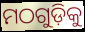
ମଠଗୁଡ଼ିକୁ